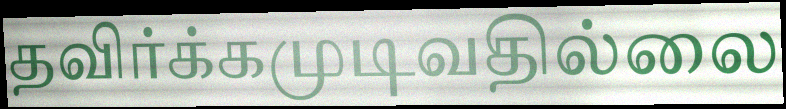
தவிர்க்கமுடிவதில்லை